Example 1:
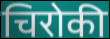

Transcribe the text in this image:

चिरोकी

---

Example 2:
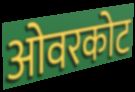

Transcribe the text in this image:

ओवरकोट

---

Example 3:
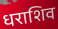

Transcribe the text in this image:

धराशिव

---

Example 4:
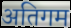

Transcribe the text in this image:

अतिगम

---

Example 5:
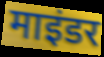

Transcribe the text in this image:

माइंडर